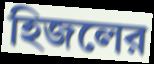
হিজলের